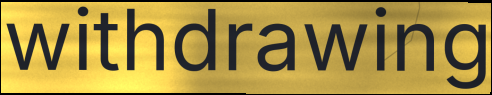
withdrawing